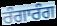
ਰੰਗਾਰੰਗ